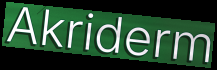
Akriderm